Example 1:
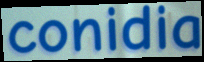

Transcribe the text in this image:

conidia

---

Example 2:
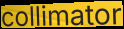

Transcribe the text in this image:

collimator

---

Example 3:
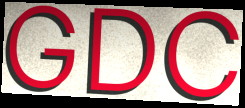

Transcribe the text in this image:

GDC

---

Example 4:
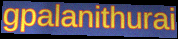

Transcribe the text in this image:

gpalanithurai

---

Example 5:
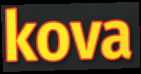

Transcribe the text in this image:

kova